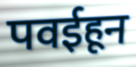
पवईहून